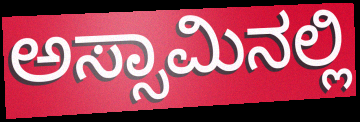
ಅಸ್ಸಾಮಿನಲ್ಲಿ